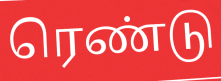
ரெண்டு